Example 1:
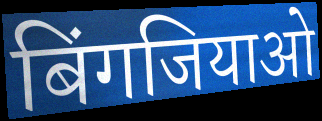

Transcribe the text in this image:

बिंगजियाओ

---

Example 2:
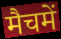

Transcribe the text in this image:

मैचमें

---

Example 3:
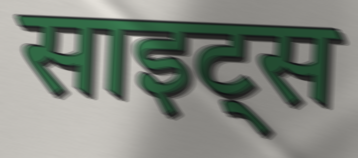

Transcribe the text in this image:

साइट्स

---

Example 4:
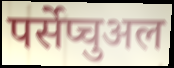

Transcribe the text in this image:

पर्सेप्चुअल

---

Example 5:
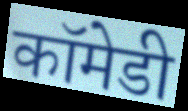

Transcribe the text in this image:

कॉमेडी